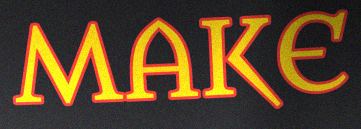
MAKE